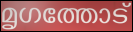
മൃഗത്തോട്